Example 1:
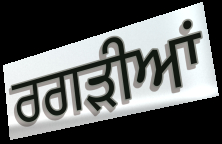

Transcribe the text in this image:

ਰਗੜੀਆਂ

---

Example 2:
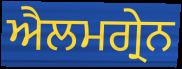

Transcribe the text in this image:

ਐਲਮਗ੍ਰੇਨ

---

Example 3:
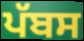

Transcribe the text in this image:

ਪੱਬਸ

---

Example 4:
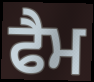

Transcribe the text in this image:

ਫੈਮ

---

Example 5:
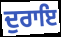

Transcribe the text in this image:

ਦੁਰਾਇ